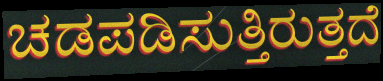
ಚಡಪಡಿಸುತ್ತಿರುತ್ತದೆ